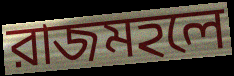
রাজমহলে